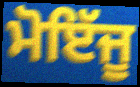
ਮੋਇੱਜੂ